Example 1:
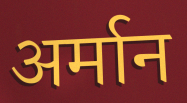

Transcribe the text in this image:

अर्मान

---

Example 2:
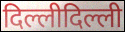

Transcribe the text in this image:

दिल्लीदिल्ली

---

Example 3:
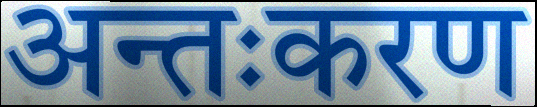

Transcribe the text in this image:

अन्तःकरण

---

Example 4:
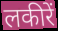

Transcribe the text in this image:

लकीरें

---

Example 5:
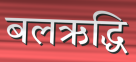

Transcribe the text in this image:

बलऋद्धि